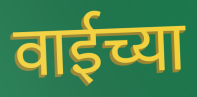
वाईच्या